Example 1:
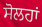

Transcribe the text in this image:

ਸੋਲਹਾਂ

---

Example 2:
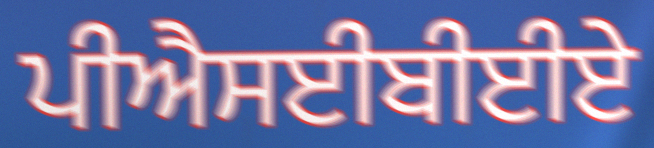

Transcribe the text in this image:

ਪੀਐਸਈਬੀਈਏ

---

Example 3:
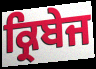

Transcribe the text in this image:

ਕ੍ਰਿਬੇਜ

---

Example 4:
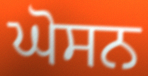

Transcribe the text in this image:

ਘੋਸਨ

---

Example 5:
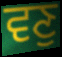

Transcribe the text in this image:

ਵਣੁ